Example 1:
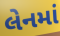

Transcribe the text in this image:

લેનમાં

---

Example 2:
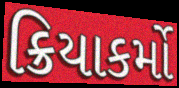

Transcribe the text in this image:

ક્રિયાકર્મો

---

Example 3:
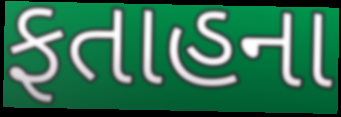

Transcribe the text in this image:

ફતાહના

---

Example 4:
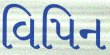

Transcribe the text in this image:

વિપિન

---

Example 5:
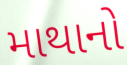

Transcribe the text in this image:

માથાનો